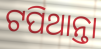
ଟପିଥାନ୍ତା